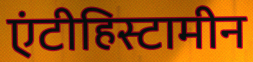
एंटीहिस्टामीन